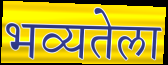
भव्यतेला